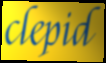
clepid